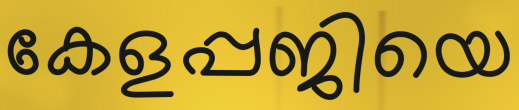
കേളപ്പജിയെ